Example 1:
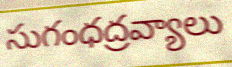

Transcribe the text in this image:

సుగంధద్రవ్యాలు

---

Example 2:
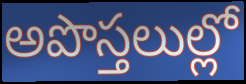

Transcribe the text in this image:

అపొస్తలుల్లో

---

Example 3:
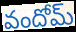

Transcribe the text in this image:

వందోమ్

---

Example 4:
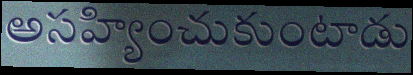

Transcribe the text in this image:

అసహ్యించుకుంటాడు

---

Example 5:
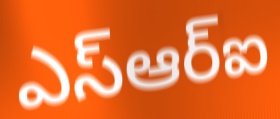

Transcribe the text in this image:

ఎస్ఆర్ఐ